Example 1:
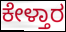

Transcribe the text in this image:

ಕೇಳ್ತಾರ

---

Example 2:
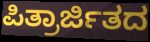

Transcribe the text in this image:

ಪಿತ್ರಾರ್ಜಿತದ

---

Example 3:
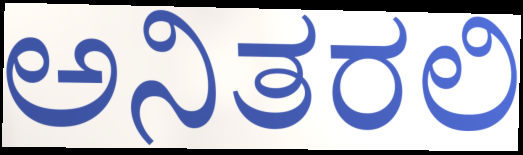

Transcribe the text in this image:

ಅನಿತರಲಿ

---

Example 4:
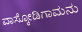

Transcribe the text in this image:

ವಾಸ್ಕೋಡಿಗಾಮನು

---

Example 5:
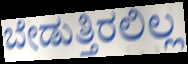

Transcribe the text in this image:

ಬೇಡುತ್ತಿರಲಿಲ್ಲ